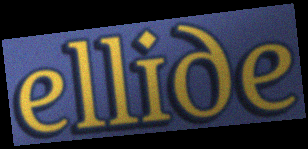
ellide